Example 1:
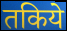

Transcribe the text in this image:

तकिये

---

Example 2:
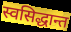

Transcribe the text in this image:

स्वसिद्धान्त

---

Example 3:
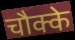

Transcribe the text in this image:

चौक्के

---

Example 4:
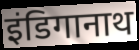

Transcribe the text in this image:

इंडिगानाथ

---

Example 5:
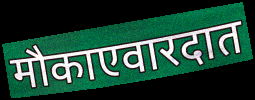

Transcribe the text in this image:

मौकाएवारदात